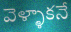
వెళ్ళాకనే